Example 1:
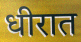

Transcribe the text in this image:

धीरात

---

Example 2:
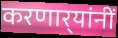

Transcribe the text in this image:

करणार्‍यांनीं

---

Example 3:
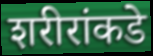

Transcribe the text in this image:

शरीरांकडे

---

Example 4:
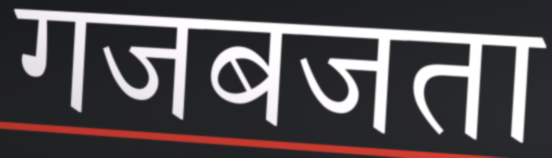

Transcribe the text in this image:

गजबजता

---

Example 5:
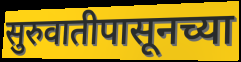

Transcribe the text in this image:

सुरुवातीपासूनच्या